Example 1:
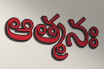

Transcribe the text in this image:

ఆత్మనః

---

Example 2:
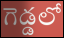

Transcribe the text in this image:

గెడ్డలో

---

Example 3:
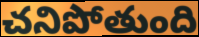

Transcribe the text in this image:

చనిపోతుంది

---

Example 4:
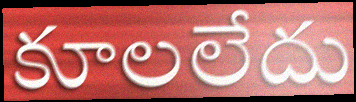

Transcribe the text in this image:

కూలలేదు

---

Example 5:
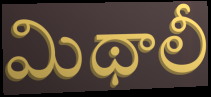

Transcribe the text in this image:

మిథాలీ